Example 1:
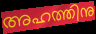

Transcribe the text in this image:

അഹത്തിനു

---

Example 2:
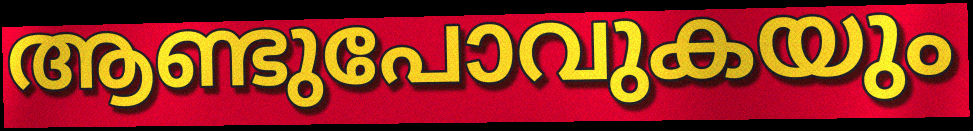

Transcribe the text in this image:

ആണ്ടുപോവുകയും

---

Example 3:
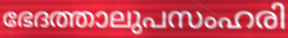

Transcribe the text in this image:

ഭേദത്താലുപസംഹരി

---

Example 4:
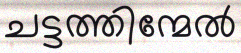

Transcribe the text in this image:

ചട്ടത്തിന്മേൽ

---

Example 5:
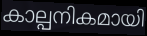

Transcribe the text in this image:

കാല്പനികമായി